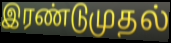
இரண்டுமுதல்